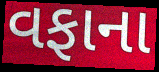
વફાના